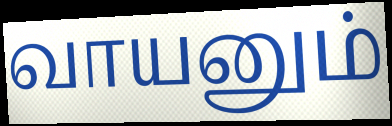
வாயனும்